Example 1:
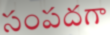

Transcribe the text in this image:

సంపదగా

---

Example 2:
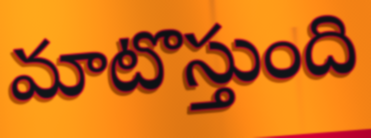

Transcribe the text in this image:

మాటొస్తుంది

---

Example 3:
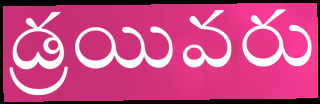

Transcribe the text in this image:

డ్రయివరు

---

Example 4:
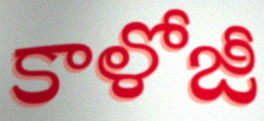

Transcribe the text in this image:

కాళోజీ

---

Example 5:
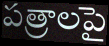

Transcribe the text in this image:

పత్రాలపై